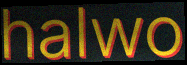
halwo